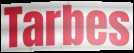
Tarbes